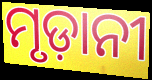
ମୃଡ଼ାନୀ